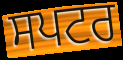
ਸਪਟਰ